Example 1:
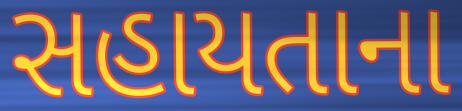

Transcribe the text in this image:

સહાયતાના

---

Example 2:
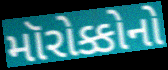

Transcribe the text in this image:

મૉરોક્કોનો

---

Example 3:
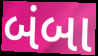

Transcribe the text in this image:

બંબા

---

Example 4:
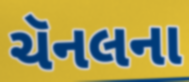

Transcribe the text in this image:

ચૅનલના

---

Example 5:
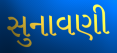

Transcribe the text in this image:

સુનાવણી